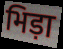
भिड़ा